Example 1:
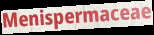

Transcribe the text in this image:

Menispermaceae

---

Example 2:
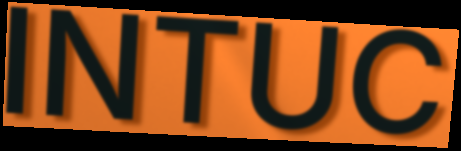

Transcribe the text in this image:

INTUC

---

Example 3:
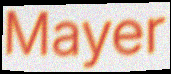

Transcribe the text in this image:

Mayer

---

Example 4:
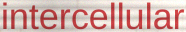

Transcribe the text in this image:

intercellular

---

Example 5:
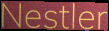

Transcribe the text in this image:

Nestler